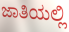
ಜಾತಿಯಲ್ಲಿ